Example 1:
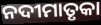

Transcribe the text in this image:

ନଦୀମାତୃକା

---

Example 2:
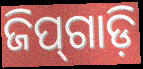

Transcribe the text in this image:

ଜିପ୍‌ଗାଡ଼ି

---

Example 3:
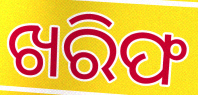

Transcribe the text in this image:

ଖରିଫ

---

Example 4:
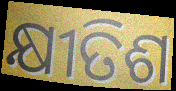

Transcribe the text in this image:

କ୍ଷୀତିଶ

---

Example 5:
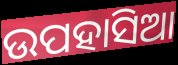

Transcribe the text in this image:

ଉପହାସିଆ